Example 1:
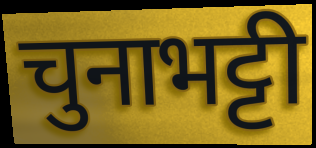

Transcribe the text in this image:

चुनाभट्टी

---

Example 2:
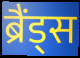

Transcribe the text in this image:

ब्रैंड्स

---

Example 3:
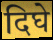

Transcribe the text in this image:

दिघे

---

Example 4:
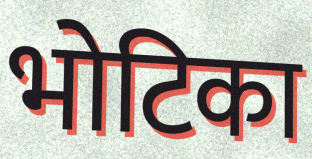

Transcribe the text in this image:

भोटिका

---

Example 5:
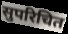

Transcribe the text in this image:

सुपरिचित